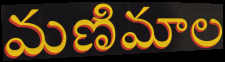
మణిమాల